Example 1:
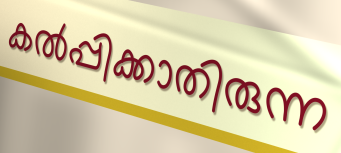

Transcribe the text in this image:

കൽപ്പിക്കാതിരുന്ന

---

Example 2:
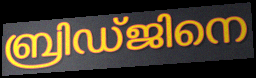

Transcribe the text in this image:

ബ്രിഡ്ജിനെ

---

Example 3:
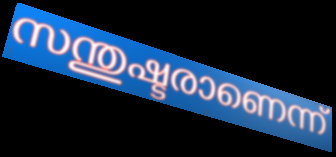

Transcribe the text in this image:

സന്തുഷ്ടരാണെന്ന്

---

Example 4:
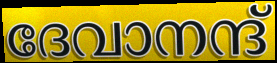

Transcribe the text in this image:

ദേവാനന്ദ്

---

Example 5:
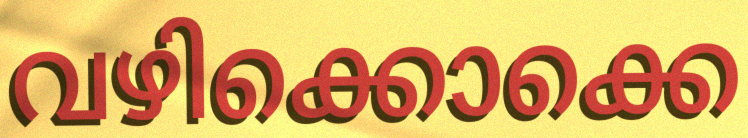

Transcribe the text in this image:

വഴിക്കൊക്കെ